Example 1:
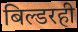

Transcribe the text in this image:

बिल्डरही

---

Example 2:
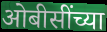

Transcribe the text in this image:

ओबीसींच्या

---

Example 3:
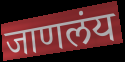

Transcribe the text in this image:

जाणलंय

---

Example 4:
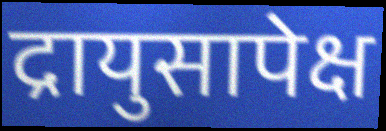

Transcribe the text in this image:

द्रायुसापेक्ष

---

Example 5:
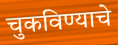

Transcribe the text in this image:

चुकविण्याचे